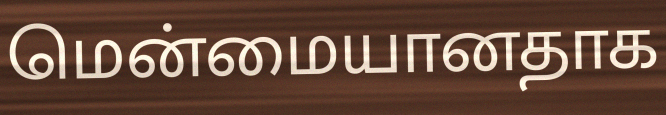
மென்மையானதாக